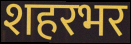
शहरभर